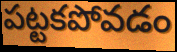
పట్టకపోవడం